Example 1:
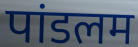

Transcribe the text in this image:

पांडलम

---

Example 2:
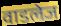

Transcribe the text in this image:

वाडलेज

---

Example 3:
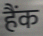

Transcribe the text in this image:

हैंक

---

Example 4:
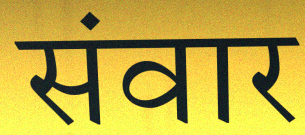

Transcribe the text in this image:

संवार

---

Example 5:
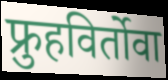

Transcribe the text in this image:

फ्रुहविर्तोवा